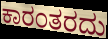
ಕಾರಂತರದು